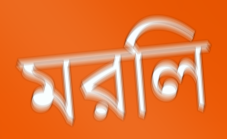
মরলি